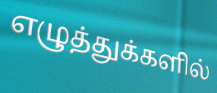
எழுத்துக்களில்